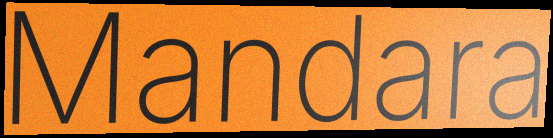
Mandara